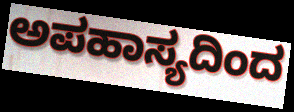
ಅಪಹಾಸ್ಯದಿಂದ